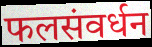
फलसंवर्धन